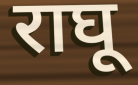
राघू